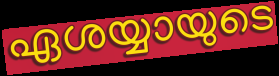
ഏശയ്യായുടെ